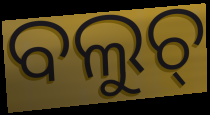
ବଲୁଚ୍